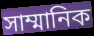
সাম্মানিক